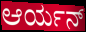
ಆರ್ಯನ್